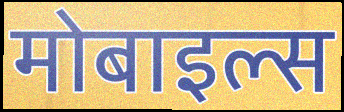
मोबाइल्स